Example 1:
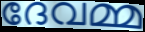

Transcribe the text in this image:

ദേവമ്മ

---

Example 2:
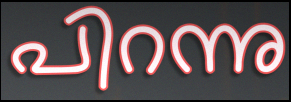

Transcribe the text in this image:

പിറന്നു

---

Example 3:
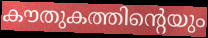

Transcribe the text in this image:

കൗതുകത്തിന്റെയും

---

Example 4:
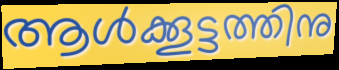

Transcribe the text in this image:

ആൾക്കൂട്ടത്തിനു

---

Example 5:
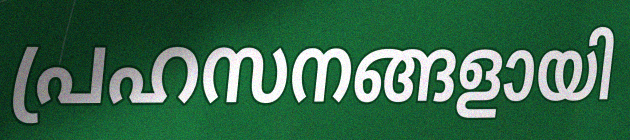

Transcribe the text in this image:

പ്രഹസനങ്ങളായി